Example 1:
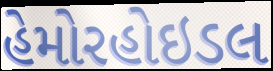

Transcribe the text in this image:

હેમોરહોઇડલ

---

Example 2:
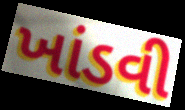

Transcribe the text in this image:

ખાંડવી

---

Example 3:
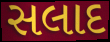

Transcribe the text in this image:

સલાદ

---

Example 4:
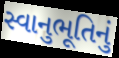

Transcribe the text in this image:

સ્વાનુભૂતિનું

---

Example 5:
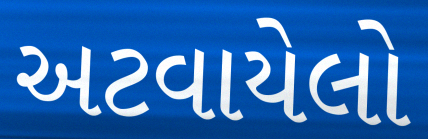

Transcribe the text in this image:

અટવાયેલો